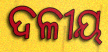
ଦଳୀୟ